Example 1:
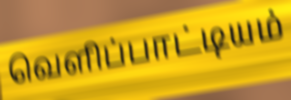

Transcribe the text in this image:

வெளிப்பாட்டியம்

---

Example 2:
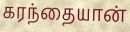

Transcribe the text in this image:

கரந்தையான்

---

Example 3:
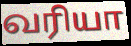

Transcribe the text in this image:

வரியா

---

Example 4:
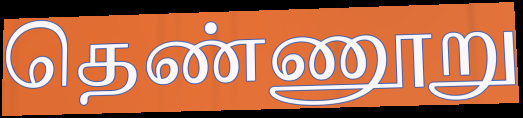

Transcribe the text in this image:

தெண்ணூறு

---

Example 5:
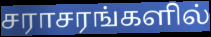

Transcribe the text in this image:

சராசரங்களில்